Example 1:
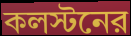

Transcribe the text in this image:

কলস্টনের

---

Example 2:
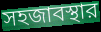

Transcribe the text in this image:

সহজাবস্থার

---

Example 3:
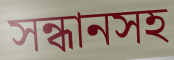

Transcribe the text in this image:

সন্ধানসহ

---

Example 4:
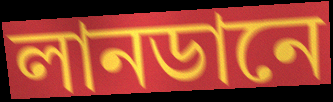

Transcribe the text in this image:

লানডানে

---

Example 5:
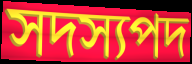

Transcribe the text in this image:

সদস্যপদ